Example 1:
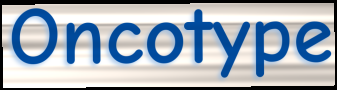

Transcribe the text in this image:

Oncotype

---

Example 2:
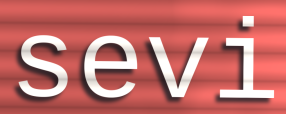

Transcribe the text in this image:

sevi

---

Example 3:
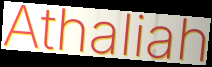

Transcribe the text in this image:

Athaliah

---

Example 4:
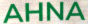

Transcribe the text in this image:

AHNA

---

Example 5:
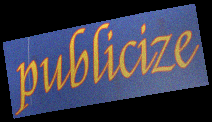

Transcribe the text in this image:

publicize